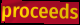
proceeds